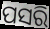
ପସରି